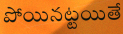
పోయినట్టయితే